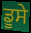
ਡੂਸੇ